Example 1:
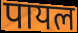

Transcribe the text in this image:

पायल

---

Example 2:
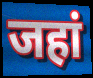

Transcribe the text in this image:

जहां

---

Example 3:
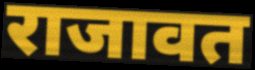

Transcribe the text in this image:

राजावत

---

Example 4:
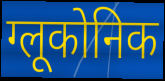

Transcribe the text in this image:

ग्लूकोनिक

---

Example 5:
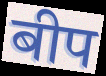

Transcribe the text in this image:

बीप